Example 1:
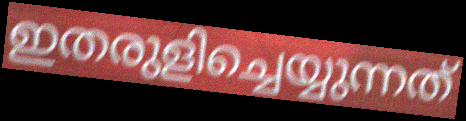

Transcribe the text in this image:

ഇതരുളിച്ചെയ്യുന്നത്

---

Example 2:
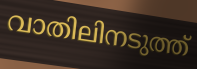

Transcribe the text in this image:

വാതിലിനടുത്ത്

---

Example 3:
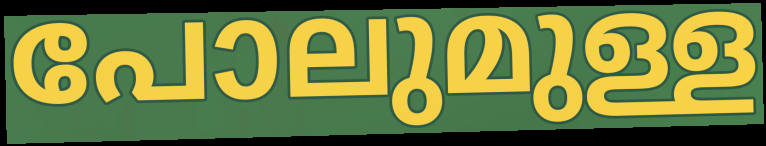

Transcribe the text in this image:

പോലുമുള്ള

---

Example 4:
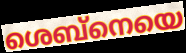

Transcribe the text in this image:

ശെബ്നെയെ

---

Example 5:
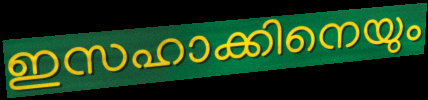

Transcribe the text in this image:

ഇസഹാക്കിനെയും